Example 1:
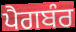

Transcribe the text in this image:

ਪੈਗਬੰਰ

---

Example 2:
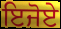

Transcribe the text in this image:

ਇਜੋਏ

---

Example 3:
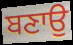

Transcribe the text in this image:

ਬਣਾਉ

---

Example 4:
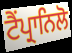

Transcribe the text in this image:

ਟੈਂਪ੍ਰਾਨਿਲੋ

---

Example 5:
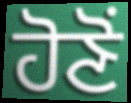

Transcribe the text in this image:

ਹੋਣੋਂ